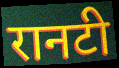
रानटी